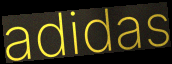
adidas